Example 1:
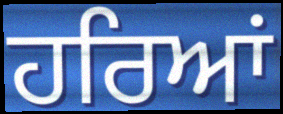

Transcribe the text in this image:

ਹਰਿਆਂ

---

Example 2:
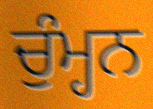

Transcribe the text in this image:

ਚੁੰਮ੍ਹਨ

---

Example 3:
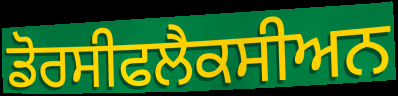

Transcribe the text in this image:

ਡੋਰਸੀਫਲੈਕਸੀਅਨ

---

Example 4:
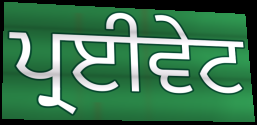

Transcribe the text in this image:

ਪ੍ਰਈਵੇਟ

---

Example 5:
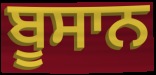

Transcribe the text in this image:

ਬੂਸਾਨ